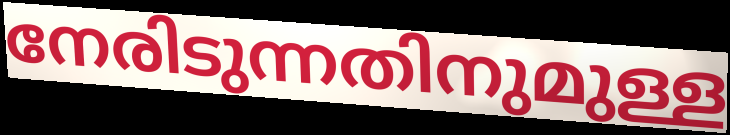
നേരിടുന്നതിനുമുള്ള